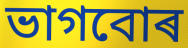
ভাগবোৰ